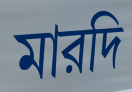
মারদি